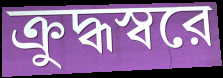
ক্রুদ্ধস্বরে